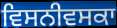
ਵਿਸਨੀਵਸਕਾ